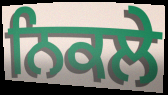
ਨਿਕਲੇ